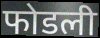
फोडली